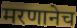
मरणानेच